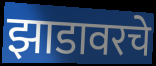
झाडावरचे